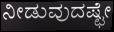
ನೀಡುವುದಷ್ಟೇ